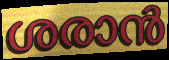
ശരാൻ